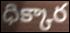
ధిక్కార